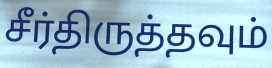
சீர்திருத்தவும்